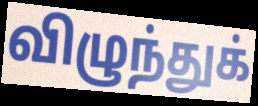
விழுந்துக்